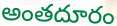
అంతదూరం